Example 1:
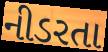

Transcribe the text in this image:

નીડરતા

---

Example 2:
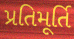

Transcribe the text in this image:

પ્રતિમૂર્તિ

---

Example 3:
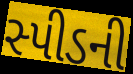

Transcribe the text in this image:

સ્પીડની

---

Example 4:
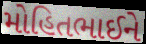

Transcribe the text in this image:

મોહિતભાઈને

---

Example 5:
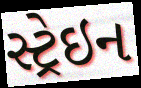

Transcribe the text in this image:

સ્ટ્રેઇન